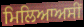
ਮਿਲਿਆਅਸੀਂ